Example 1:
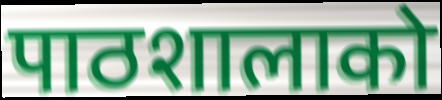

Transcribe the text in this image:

पाठशालाको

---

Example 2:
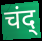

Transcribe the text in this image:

चंद्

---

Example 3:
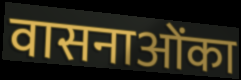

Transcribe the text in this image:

वासनाओंका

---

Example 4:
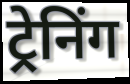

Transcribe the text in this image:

ट्रेनिंग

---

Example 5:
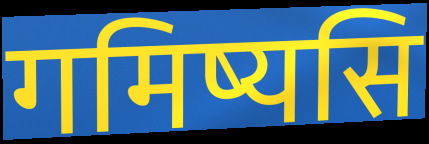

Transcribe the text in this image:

गमिष्यसि